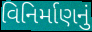
વિનિર્માણનું